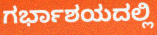
ಗರ್ಭಾಶಯದಲ್ಲಿ